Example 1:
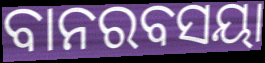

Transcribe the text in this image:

ବାନରବସୟା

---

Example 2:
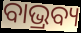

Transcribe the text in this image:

ବାଭ୍ରବ୍ୟ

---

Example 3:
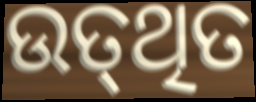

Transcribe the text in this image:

ଉତ୍‌ଥିତ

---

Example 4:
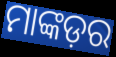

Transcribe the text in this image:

ମାଙ୍କଡ଼ର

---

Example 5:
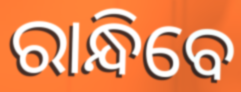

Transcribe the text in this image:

ରାନ୍ଧିବେ